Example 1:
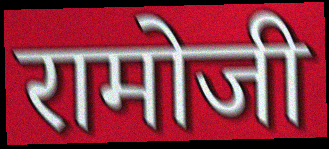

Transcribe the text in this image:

रामोजी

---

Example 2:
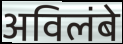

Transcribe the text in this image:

अविलंबे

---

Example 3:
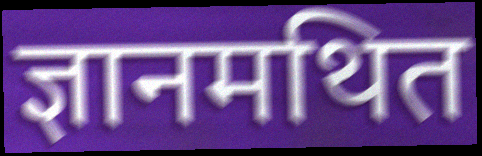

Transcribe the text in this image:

ज्ञानमथित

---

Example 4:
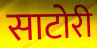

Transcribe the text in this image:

साटोरी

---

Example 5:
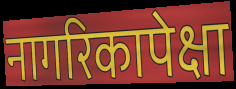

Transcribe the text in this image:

नागरिकापेक्षा